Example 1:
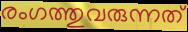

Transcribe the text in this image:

രംഗത്തുവരുന്നത്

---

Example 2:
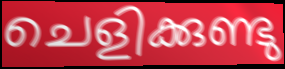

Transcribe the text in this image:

ചെളിക്കുണ്ടു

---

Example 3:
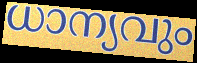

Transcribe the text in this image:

ധാന്യവും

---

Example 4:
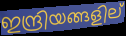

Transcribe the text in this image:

ഇന്ദ്രിയങ്ങളില്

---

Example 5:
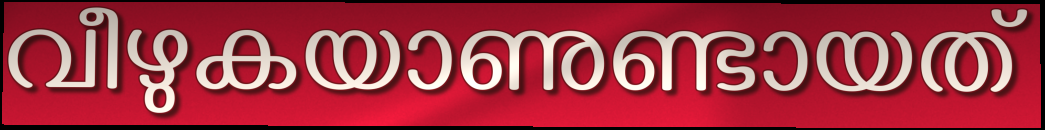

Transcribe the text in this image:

വീഴുകയാണുണ്ടായത്